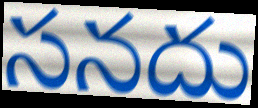
సనదు